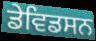
ਡੇਵਿਡਸਨ